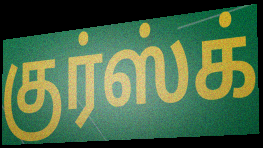
குர்ஸ்க்